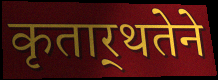
कृतार्थतेने